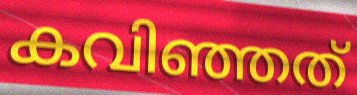
കവിഞ്ഞത്